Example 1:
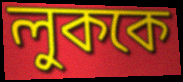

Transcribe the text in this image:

লুককে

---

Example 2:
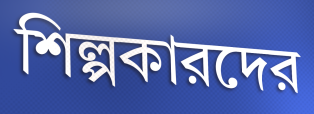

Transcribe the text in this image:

শিল্পকারদের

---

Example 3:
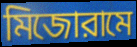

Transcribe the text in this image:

মিজোরামে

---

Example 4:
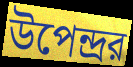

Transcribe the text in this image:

উপেন্দ্রর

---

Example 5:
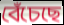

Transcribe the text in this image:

বেঁচেছে